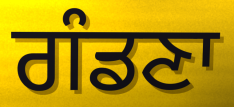
ਗੰਡਣਾ